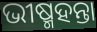
ଭୀଷ୍ମହନ୍ତା